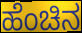
ಹೆಂಚಿನ